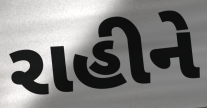
રાહીને